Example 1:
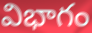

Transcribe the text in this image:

విభాగం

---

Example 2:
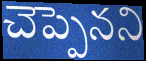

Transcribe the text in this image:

చెప్పెనని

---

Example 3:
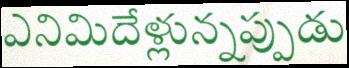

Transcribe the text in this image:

ఎనిమిదేళ్లున్నప్పుడు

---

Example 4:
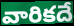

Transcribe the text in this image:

వారికదే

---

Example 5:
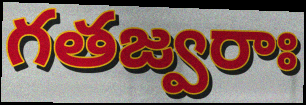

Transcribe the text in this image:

గతజ్వరాః